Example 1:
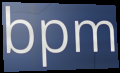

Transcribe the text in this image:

bpm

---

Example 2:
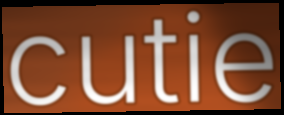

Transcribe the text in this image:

cutie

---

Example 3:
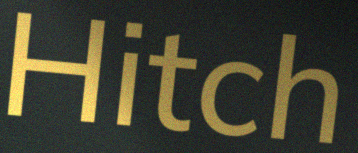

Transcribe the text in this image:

Hitch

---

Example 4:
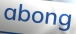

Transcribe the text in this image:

abong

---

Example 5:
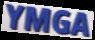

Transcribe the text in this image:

YMGA